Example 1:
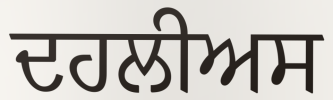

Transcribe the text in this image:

ਦਹਲੀਅਸ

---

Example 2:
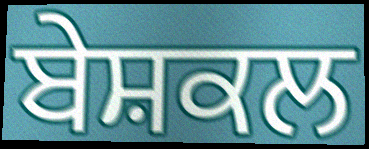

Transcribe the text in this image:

ਬੇਸ਼ਕਲ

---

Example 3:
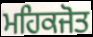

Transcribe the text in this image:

ਮਹਿਕਜੋਤ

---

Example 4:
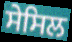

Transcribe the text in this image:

ਸੇਸਿਲ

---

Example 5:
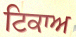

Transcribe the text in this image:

ਟਿਕਾਅ